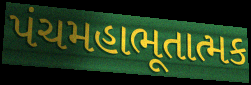
પંચમહાભૂતાત્મક